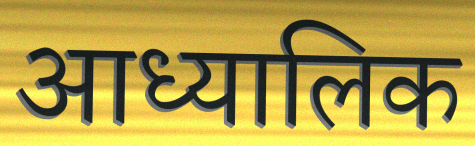
आध्यालिक